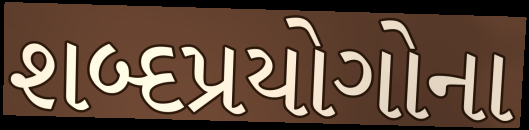
શબ્દપ્રયોગોના